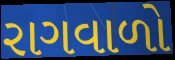
રાગવાળો